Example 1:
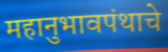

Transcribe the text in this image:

महानुभावपंथाचे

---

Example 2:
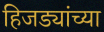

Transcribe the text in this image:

हिजड्यांच्या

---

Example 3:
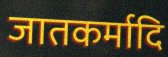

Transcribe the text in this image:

जातकर्मादि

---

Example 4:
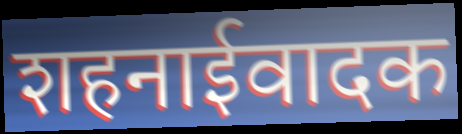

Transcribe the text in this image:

शहनाईवादक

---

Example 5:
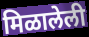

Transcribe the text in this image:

मिळालेली